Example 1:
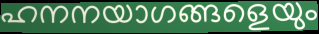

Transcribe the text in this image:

ഹനനയാഗങ്ങളെയും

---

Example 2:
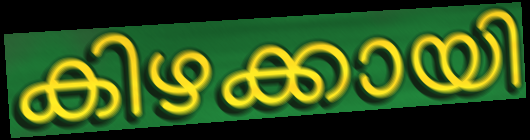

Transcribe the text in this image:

കിഴക്കായി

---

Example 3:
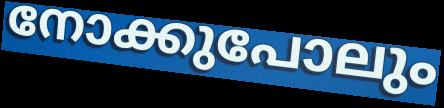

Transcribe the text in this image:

നോക്കുപോലും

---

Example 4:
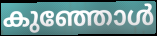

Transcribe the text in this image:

കുഞ്ഞോൾ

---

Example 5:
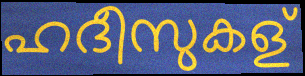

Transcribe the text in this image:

ഹദീസുകള്